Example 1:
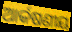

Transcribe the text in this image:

ଆର୍କଷଣୀୟ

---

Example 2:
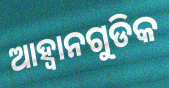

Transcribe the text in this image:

ଆହ୍ୱାନଗୁଡିକ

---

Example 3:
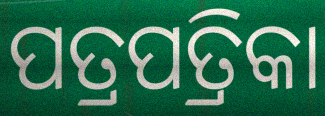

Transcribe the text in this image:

ପତ୍ରପତ୍ରିକା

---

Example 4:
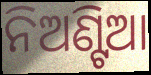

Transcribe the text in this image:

ନିଅଣ୍ଟିଆ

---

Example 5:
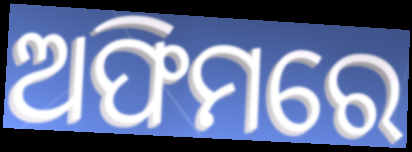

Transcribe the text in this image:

ଅଫିମରେ